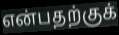
என்பதற்குக்